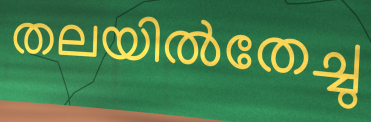
തലയിൽതേച്ചു